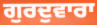
ਗੁਰਦੁਵਾਰਾ